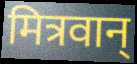
मित्रवान्